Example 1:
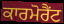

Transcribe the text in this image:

ਕਾਰਮੋਰੈਂਟ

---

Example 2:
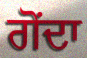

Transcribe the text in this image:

ਗੋਂਦਾ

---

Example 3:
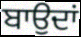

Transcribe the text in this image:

ਬਾਉਦਾਂ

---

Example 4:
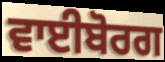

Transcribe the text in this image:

ਵਾਈਬੋਰਗ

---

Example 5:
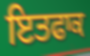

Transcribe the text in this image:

ਇਤਫਾਕ